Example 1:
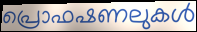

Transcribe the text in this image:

പ്രൊഫഷണലുകൾ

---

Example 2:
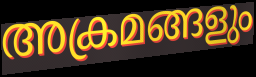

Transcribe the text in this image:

അക്രമങ്ങളും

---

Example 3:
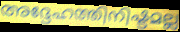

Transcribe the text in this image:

അദ്ദേഹത്തിനിഷ്ടമല്ല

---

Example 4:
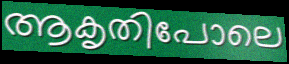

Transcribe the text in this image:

ആകൃതിപോലെ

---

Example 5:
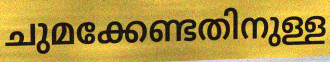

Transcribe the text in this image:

ചുമക്കേണ്ടതിനുള്ള